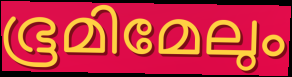
ഭൂമിമേലും